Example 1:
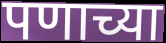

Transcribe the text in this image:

पणाच्या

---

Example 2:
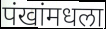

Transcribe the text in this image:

पंखांमधला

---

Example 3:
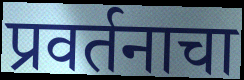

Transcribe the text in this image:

प्रवर्तनाचा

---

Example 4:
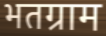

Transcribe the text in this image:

भतग्राम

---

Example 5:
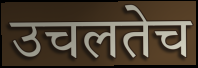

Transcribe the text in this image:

उचलतेच